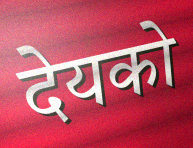
देयको